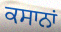
ਕਸਾਨਾਂ